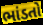
ભાંડતો